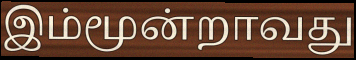
இம்மூன்றாவது